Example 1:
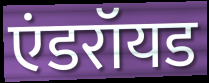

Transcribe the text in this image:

एंडरॉयड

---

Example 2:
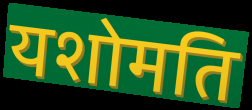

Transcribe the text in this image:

यशोमति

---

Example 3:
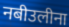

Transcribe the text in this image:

नबीउलीना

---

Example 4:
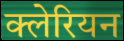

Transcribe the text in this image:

क्लेरियन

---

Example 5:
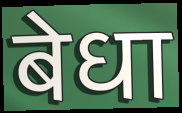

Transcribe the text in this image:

बेधा